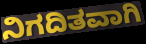
ನಿಗದಿತವಾಗಿ